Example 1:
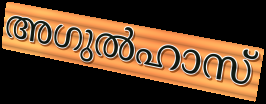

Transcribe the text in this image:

അഗുൽഹാസ്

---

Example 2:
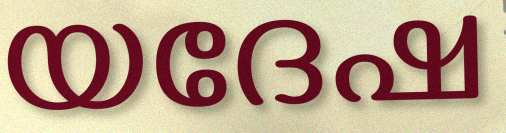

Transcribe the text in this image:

യദേഷ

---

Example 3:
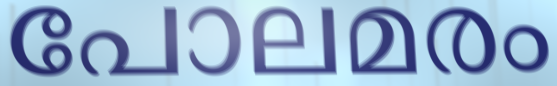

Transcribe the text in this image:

പോലമരം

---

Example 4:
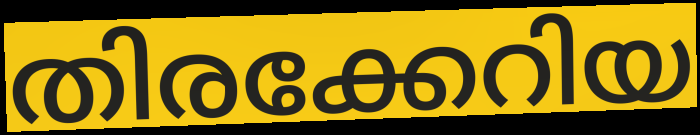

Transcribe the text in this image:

തിരക്കേറിയ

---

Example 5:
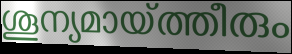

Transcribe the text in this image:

ശൂന്യമായ്ത്തീരും